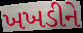
ખખડીને